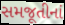
સમજૂતીનાં